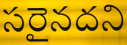
సరైనదని